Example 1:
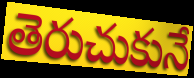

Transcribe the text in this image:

తెరుచుకునే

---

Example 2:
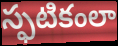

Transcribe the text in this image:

స్ఫటికంలా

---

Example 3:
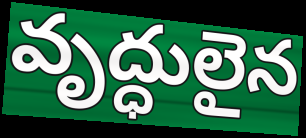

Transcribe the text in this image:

వృద్ధులైన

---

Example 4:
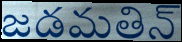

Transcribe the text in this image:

జడమతిన్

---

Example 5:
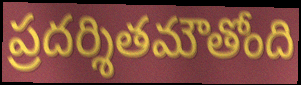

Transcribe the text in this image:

ప్రదర్శితమౌతోంది